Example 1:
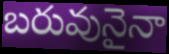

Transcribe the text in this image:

బరువునైనా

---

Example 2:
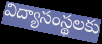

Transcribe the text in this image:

విద్యాసంస్థలకు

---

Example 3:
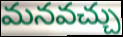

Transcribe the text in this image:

మనవచ్చు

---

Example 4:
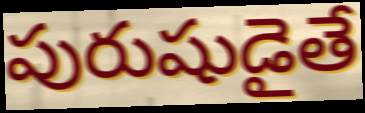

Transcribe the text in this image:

పురుషుడైతే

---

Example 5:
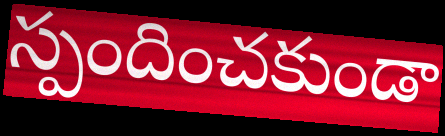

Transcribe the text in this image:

స్పందించకుండా